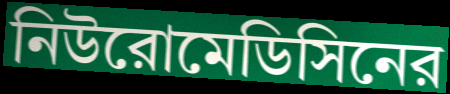
নিউরোমেডিসিনের